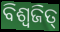
ବିଶ୍ୱଜିତ୍